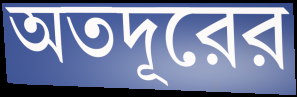
অতদূরের